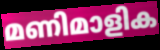
മണിമാളിക